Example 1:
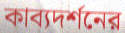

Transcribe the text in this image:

কাব্যদর্শনের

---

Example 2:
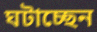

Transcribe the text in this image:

ঘটাচ্ছেন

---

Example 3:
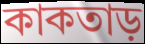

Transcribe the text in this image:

কাকতাড়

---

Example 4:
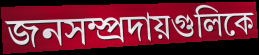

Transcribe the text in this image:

জনসম্প্রদায়গুলিকে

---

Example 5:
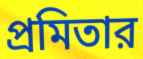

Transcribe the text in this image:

প্রমিতার